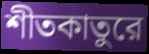
শীতকাতুরে